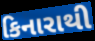
કિનારાથી